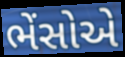
ભેંસોએ